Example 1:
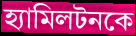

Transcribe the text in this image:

হ্যামিলটনকে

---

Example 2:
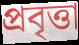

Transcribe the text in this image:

প্রবৃত্তা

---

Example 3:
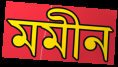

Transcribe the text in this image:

মমীন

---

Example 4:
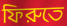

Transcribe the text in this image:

ফিরুতে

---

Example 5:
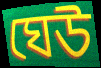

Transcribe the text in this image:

ঘেউ